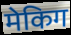
मेकिग